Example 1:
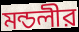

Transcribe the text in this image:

মন্ডলীর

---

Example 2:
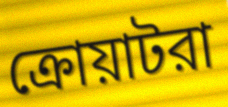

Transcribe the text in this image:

ক্রোয়াটরা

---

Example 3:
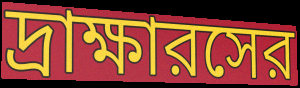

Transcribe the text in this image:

দ্রাক্ষারসের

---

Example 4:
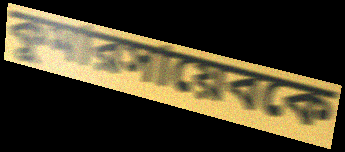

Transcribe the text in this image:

কুমারসায়েবকে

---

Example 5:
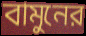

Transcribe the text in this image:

বামুনের